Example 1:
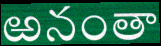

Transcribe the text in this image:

ఱనంతా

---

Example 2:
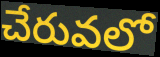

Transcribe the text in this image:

చేరువలో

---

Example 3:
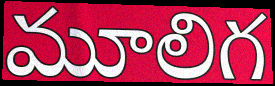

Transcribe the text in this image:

మూలిగ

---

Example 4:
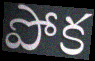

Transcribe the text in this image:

పోక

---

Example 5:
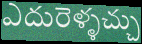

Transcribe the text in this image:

ఎదురెళ్ళచ్చు